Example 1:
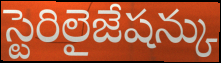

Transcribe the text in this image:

స్టెరిలైజేషన్కు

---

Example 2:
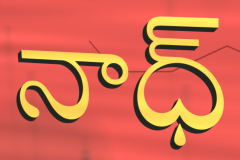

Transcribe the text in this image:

నాధ్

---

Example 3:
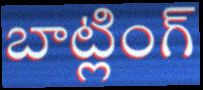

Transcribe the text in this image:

బాట్లింగ్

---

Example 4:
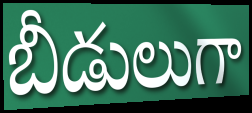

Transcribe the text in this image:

బీడులుగా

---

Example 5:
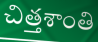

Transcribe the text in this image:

చిత్తశాంతి